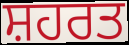
ਸ਼ਹਰਤ